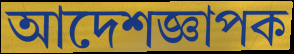
আদেশজ্ঞাপক